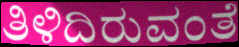
ತಿಳಿದಿರುವಂತೆ